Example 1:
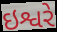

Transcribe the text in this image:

ઇશ્વરે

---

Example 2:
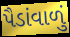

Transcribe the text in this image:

પૈડાંવાળું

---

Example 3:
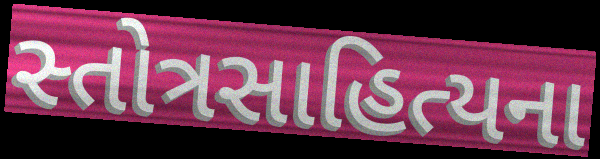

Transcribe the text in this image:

સ્તોત્રસાહિત્યના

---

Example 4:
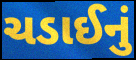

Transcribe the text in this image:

ચડાઈનું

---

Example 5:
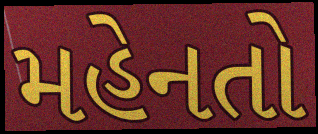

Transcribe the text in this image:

મહેનતો